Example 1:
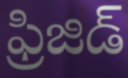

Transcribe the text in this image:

ఫ్రిజిడ్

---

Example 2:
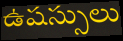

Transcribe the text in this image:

ఉషస్సులు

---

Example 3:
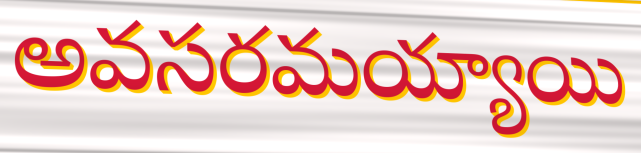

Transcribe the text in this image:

అవసరమయ్యాయి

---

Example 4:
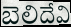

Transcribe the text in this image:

బెలిదేవి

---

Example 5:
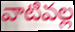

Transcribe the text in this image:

వాటివల్ల